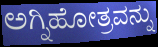
ಅಗ್ನಿಹೋತ್ರವನ್ನು